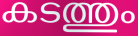
കടത്തും